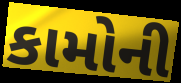
કામોની